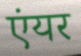
एंयर